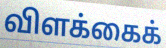
விளக்கைக்